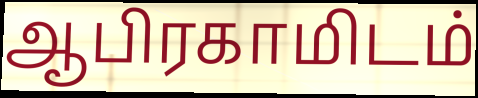
ஆபிரகாமிடம்